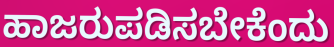
ಹಾಜರುಪಡಿಸಬೇಕೆಂದು